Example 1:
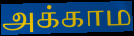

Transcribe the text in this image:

அக்காம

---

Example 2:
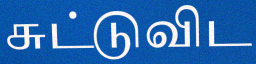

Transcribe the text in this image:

சுட்டுவிட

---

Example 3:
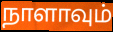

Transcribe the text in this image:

நாளாவும்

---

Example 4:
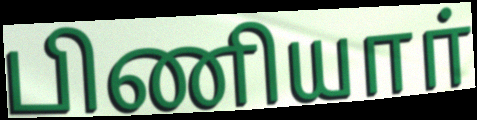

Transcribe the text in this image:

பிணியார்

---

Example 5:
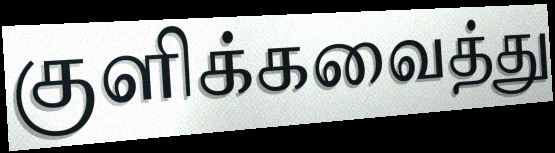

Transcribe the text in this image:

குளிக்கவைத்து